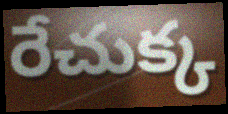
రేచుక్క